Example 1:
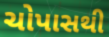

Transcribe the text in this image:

ચોપાસથી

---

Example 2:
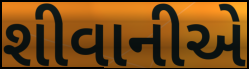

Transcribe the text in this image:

શીવાનીએ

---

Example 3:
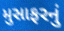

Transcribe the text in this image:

મુસાફરનું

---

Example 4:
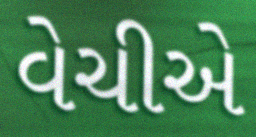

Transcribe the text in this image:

વેચીએ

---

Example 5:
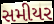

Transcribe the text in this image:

સમીયર